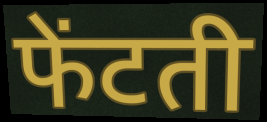
फेंटती